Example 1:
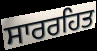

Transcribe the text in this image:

ਸਾਰਰਹਿਤ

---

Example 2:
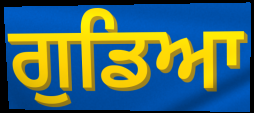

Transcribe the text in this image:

ਗੁਡਿਆ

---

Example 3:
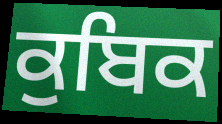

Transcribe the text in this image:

ਕੁਬਿਕ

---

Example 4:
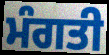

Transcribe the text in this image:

ਮੰਗਤੀ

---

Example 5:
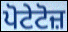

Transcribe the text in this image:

ਪੋਟੇਟੋਜ਼